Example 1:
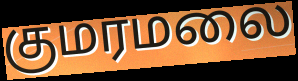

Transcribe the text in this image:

குமரமலை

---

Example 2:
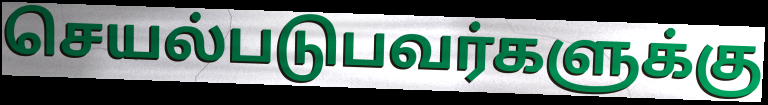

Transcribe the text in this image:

செயல்படுபவர்களுக்கு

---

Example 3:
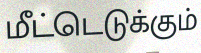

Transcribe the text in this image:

மீட்டெடுக்கும்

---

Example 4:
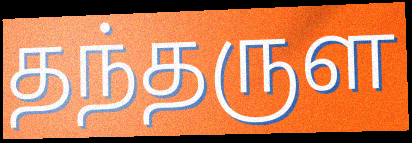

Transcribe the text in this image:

தந்தருள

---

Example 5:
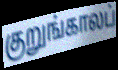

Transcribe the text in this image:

குறுங்காலப்